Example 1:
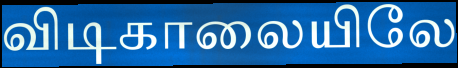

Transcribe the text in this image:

விடிகாலையிலே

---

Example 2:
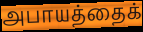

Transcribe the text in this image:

அபாயத்தைக்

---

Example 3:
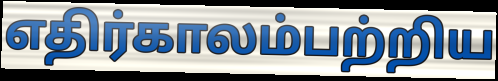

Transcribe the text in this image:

எதிர்காலம்பற்றிய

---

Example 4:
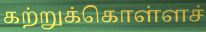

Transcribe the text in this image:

கற்றுக்கொள்ளச்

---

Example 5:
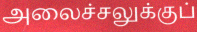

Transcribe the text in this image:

அலைச்சலுக்குப்